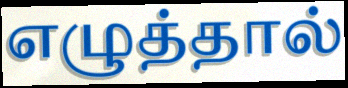
எழுத்தால்